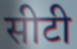
सीटी